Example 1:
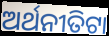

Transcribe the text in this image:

ଅର୍ଥନୀତିଟା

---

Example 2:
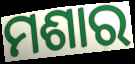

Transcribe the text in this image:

ମଶାର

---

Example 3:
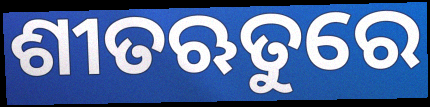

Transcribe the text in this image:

ଶୀତଋତୁରେ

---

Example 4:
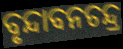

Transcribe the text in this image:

ବୃନ୍ଦାବନଚନ୍ଦ୍ର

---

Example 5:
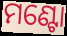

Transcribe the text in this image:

ମଣ୍ଟୋ